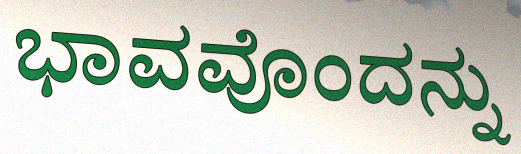
ಭಾವವೊಂದನ್ನು